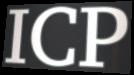
ICP